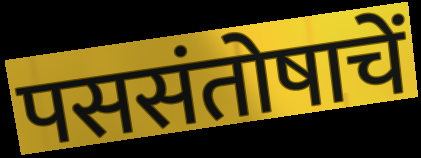
पससंतोषाचें